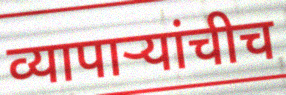
व्यापाऱ्यांचीच